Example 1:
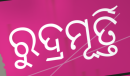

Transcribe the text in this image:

ରୁଦ୍ରମୂର୍ତ୍ତି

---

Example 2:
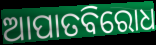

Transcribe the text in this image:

ଆପାତବିରୋଧ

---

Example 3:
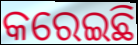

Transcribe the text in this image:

କରେଇଛି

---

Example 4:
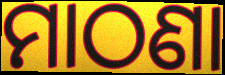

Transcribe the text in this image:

ମାଠଣା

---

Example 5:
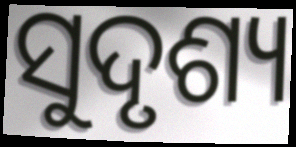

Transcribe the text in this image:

ସୁଦୃଶ୍ୟ